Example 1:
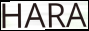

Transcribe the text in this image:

HARA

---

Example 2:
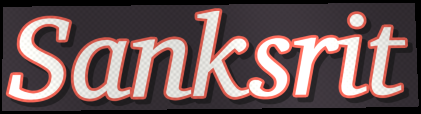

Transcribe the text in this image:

Sanksrit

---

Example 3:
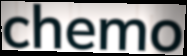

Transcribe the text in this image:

chemo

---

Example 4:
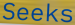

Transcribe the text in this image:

Seeks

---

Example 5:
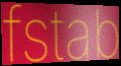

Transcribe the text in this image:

fstab